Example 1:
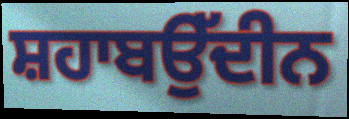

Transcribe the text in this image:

ਸ਼ਹਾਬਉੱਦੀਨ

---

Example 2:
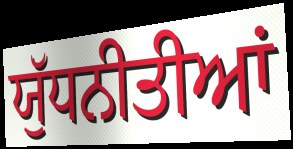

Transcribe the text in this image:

ਯੁੱਧਨੀਤੀਆਂ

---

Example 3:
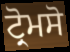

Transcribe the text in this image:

ਟ੍ਰੋਮਸੋ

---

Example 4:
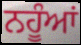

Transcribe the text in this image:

ਨਹੂੰਆਂ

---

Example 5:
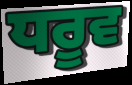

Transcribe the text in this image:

ਧਰੂਵ